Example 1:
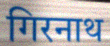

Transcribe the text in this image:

गिरनाथ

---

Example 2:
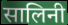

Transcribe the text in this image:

सालिनी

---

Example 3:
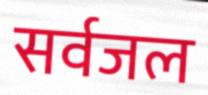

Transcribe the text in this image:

सर्वजल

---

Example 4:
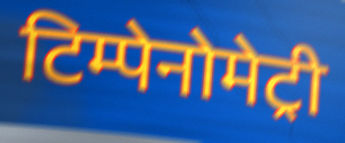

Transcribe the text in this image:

टिम्पेनोमेट्री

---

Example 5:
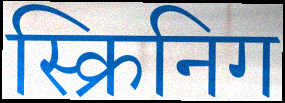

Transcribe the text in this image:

स्क्रिनिग